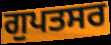
ਗੁਪਤਸਰ